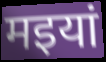
मइयां